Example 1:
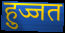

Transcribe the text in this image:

ह़ुज्जत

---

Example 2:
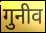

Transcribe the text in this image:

गुनीव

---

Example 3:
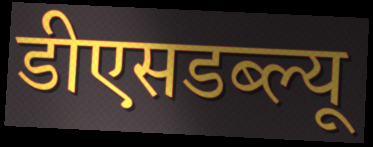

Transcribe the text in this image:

डीएसडब्ल्यू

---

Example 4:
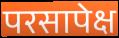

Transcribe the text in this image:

परसापेक्ष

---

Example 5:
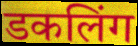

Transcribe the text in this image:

डकलिंग